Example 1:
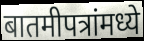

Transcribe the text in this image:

बातमीपत्रांमध्ये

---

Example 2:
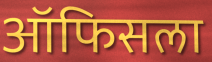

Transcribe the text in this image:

ऑफिसला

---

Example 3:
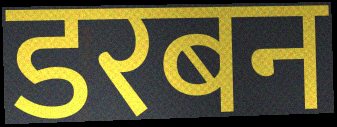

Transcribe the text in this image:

डरबन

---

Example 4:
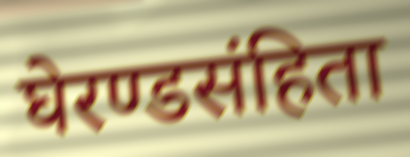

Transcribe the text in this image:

घेरण्डसंहिता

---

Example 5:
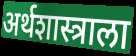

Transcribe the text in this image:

अर्थशास्त्राला